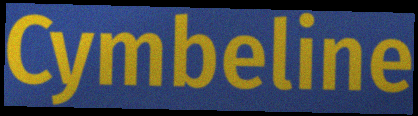
Cymbeline